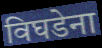
विघडेना